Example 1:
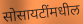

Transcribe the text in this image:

सोसायटींमधील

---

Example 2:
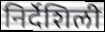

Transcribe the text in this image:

निर्देशिली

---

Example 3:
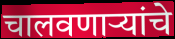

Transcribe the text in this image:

चालवणाऱ्यांचे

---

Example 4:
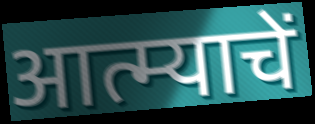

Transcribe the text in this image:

आत्म्याचें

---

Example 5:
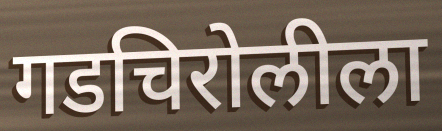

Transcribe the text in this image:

गडचिरोलीला